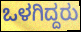
ಒಳಗಿದ್ದರು